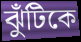
ঝুঁটিকে